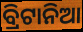
ବ୍ରିଟାନିଆ